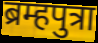
ब्रम्हपुत्रा